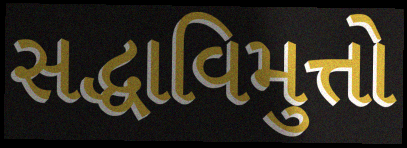
સદ્ધાવિમુત્તો